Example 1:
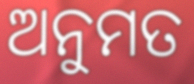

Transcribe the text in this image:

ଅନୁମତ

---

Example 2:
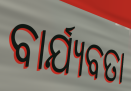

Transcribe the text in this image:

ବାର୍ଯ୍ୟବତା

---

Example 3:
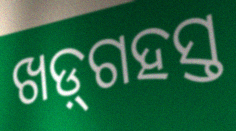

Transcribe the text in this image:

ଖଡ଼୍‌ଗହସ୍ତ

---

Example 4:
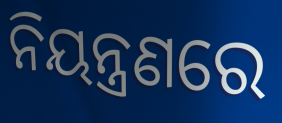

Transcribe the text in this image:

ନିୟନ୍ତ୍ରଣରେ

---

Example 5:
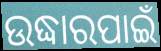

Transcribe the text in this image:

ଉଦ୍ଧାରପାଇଁ